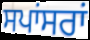
ਸਪਾਂਸਰਾਂ